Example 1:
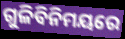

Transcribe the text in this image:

ଗୁଳିବିନିମୟରେ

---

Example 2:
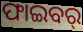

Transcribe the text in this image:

ଫାଇବର୍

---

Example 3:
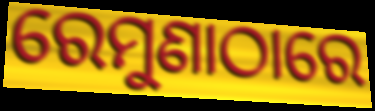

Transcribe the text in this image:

ରେମୁଣାଠାରେ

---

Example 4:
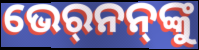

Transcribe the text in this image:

ଭେର୍‍ନନ୍‌ଙ୍କୁ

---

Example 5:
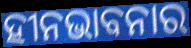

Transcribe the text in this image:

ହୀନଭାବନାର